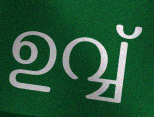
ഉവ്വ്